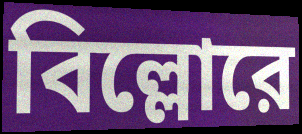
বিল্লোরে